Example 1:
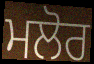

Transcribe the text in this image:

ਮਲੋਰ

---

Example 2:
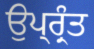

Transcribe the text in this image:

ਉਪ੍ਰ੍ਰੰਤ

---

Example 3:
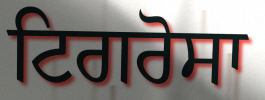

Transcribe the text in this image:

ਟਿਗਰੋਸਾ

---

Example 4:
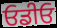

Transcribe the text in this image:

ਓਡੀਓ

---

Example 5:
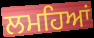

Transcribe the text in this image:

ਲਮਹਿਆਂ